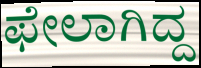
ಫೇಲಾಗಿದ್ದ